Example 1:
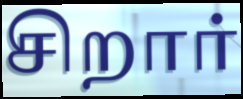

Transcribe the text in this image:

சிறார்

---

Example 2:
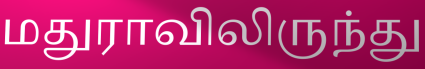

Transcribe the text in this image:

மதுராவிலிருந்து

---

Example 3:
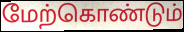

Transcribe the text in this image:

மேற்கொண்டும்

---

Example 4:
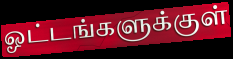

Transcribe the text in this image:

ஓட்டங்களுக்குள்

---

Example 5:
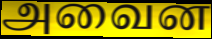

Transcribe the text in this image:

அவைன